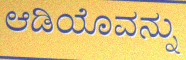
ಆಡಿಯೊವನ್ನು